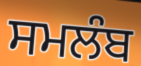
ਸਮਲੰਬ